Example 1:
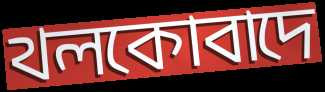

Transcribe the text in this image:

থলকোবাদে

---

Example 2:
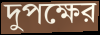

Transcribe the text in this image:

দুপক্ষের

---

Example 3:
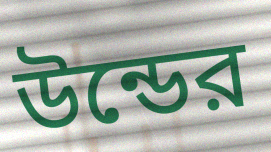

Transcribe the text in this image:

উন্ডের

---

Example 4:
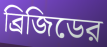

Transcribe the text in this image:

ব্রিজিডের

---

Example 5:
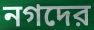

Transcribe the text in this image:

নগদের